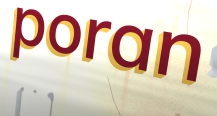
poran